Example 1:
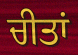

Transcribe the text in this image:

ਚੀਤਾਂ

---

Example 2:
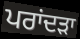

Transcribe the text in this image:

ਪਰਾਂਦੜਾ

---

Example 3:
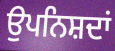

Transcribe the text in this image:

ਉਪਨਿਸ਼ਦਾਂ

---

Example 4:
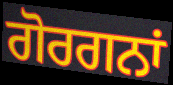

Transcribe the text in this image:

ਗੋਰਗਨਾਂ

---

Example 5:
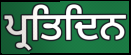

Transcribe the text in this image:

ਪ੍ਰਤਿਦਿਨ